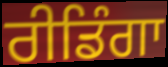
ਰੀਡਿੰਗਾ